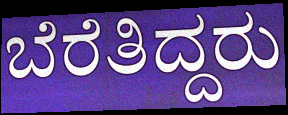
ಬೆರೆತಿದ್ದರು